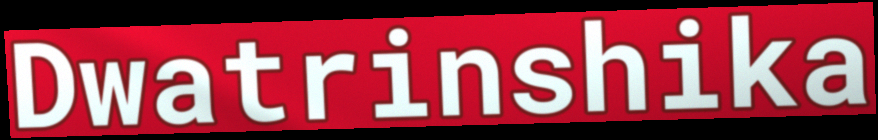
Dwatrinshika